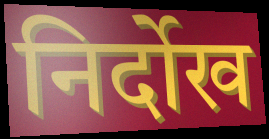
निर्दोख